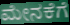
ಮೇನಕೆಗೆ